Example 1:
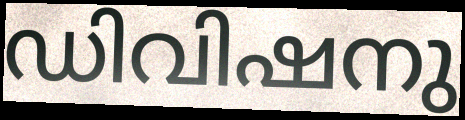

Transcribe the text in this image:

ഡിവിഷനു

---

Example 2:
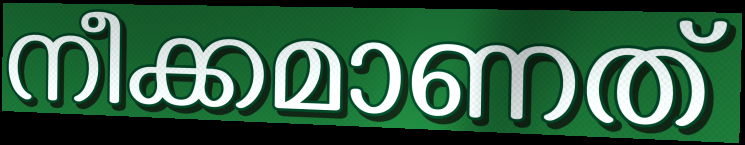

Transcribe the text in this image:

നീക്കമാണത്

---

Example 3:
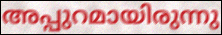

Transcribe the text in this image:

അപ്പുറമായിരുന്നു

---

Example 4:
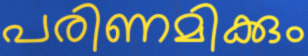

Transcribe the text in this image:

പരിണമിക്കും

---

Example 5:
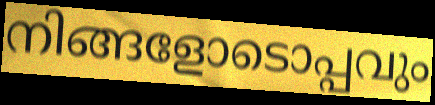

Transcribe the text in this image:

നിങ്ങളോടൊപ്പവും